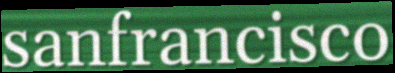
sanfrancisco